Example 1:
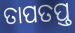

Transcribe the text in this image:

ତାପତପ୍ତ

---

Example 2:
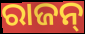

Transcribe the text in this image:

ରାଜନ୍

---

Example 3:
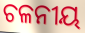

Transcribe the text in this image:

ଚଳନୀୟ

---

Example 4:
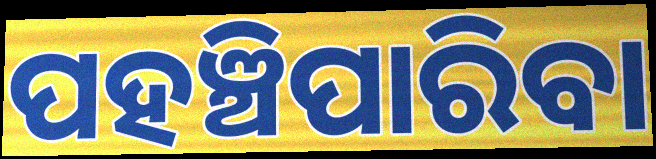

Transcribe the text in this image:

ପହଞ୍ଚିପାରିବା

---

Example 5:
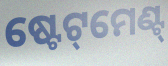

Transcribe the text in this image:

ଷ୍ଟେଟ୍‌ମେଣ୍ଟ୍